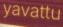
yavattu